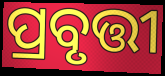
ପ୍ରବୃତ୍ତୀ